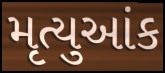
મૃત્યુઆંક